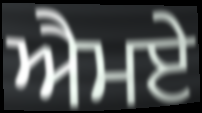
ਐਮਏ